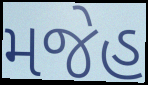
મજેહ